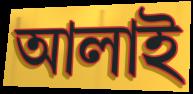
আলাই